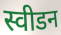
स्वीडन